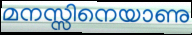
മനസ്സിനെയാണു